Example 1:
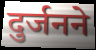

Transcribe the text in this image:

दुर्जनने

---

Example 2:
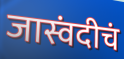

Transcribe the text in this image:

जास्वंदीचं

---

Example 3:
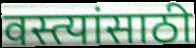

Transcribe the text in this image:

वस्त्यांसाठी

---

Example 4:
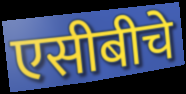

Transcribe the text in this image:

एसीबीचे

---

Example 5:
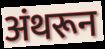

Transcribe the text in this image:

अंथरून